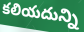
కలియదున్ని